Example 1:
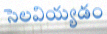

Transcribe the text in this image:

సెలవియ్యడం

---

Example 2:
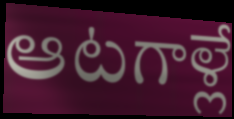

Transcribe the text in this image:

ఆటగాళ్లే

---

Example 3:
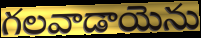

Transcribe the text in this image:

గలవాడాయెను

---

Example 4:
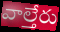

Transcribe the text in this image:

వాల్తేరు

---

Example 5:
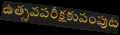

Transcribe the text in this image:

ఉత్సవపరీక్షకుపంపుట